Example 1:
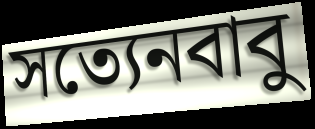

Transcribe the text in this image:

সত্যেনবাবু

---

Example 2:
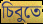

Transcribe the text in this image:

চিবুতে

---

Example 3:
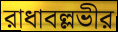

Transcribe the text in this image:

রাধাবল্লভীর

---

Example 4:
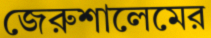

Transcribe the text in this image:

জেরুশালেমের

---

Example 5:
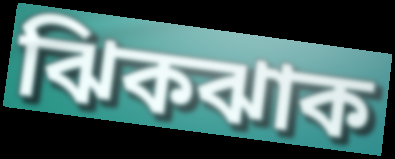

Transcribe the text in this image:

ঝিকঝাক